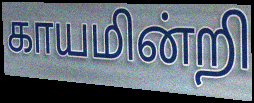
காயமின்றி